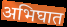
अभिघात